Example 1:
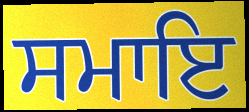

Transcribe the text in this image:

ਸਮਾਇ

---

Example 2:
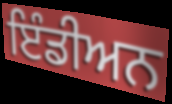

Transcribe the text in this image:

ਇੰਡੀਅਨ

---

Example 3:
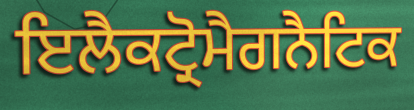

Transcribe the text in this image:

ਇਲੈਕਟ੍ਰੋਮੈਗਨੈਟਿਕ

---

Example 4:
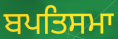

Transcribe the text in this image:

ਬਪਤਿਸਮਾ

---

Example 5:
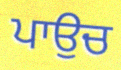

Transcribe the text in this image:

ਪਾਉਚ